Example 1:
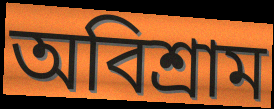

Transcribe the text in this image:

অবিশ্রাম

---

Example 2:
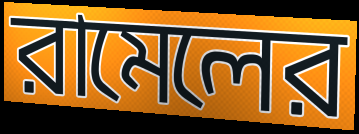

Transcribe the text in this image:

রামেলের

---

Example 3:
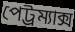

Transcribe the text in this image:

পেট্রম্যাক্স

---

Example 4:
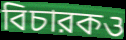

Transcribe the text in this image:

বিচারকও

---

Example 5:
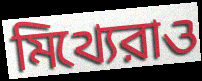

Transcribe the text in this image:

মিথ্যেরাও